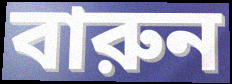
বারুন